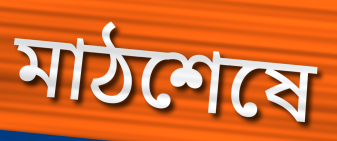
মাঠশেষে